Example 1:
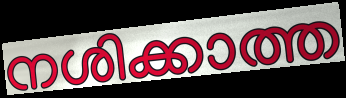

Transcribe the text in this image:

നശിക്കാത്ത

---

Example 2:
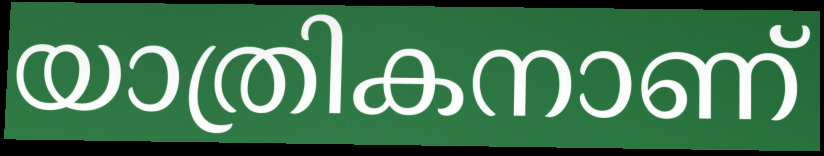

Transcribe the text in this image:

യാത്രികനാണ്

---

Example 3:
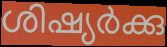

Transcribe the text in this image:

ശിഷ്യർക്കു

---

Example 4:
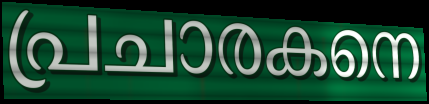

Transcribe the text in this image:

പ്രചാരകനെ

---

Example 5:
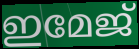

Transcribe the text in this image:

ഇമേജ്